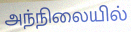
அந்நிலையில்